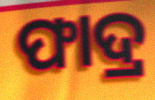
ଫାଦ୍ର